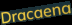
Dracaena